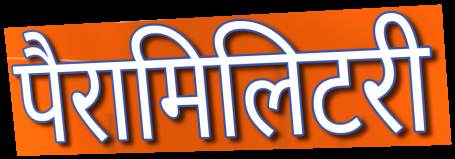
पैरामिलिटरी